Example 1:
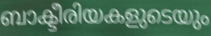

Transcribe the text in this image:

ബാക്ടീരിയകളുടെയും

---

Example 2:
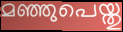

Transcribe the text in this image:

മഞ്ഞുപെയ്തു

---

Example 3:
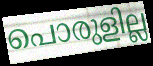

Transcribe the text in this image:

പൊരുളില്ല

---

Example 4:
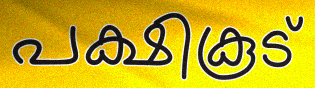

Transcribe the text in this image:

പക്ഷികൂട്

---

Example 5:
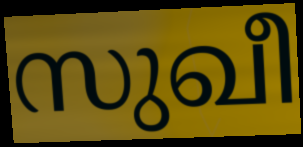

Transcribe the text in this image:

സുഖീ